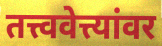
तत्त्ववेत्त्यांवर